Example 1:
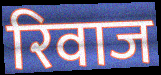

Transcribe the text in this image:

रिवाज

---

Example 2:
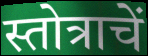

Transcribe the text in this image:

स्तोत्राचें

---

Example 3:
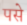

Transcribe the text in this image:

पसे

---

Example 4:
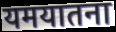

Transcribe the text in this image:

यमयातना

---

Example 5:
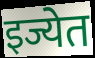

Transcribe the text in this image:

इज्येत